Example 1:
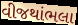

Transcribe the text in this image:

વીજથાંભલા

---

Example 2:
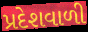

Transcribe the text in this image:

પ્રદેશવાળી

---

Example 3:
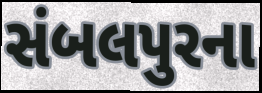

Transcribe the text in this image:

સંબલપુરના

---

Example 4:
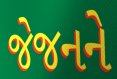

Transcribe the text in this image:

જેજનને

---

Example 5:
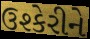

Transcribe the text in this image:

ઉશ્કેરીને